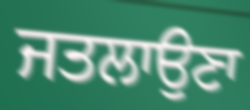
ਜਤਲਾਉਣਾ